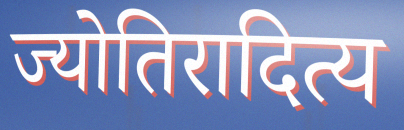
ज्योतिरादित्य